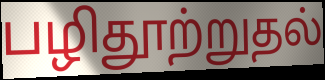
பழிதூற்றுதல்